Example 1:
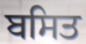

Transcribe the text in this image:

ਬਸਿਤ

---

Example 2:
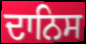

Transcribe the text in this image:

ਦਾਨਿਸ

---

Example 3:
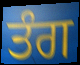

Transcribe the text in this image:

ਤੰਗ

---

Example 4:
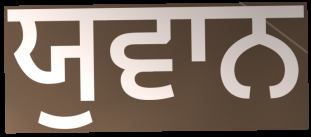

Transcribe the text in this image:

ਯੁਵਾਨ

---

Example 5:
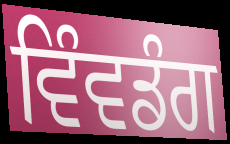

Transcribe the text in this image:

ਵਿੰਵਡੰਗ